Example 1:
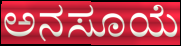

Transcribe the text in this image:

ಅನಸೂಯೆ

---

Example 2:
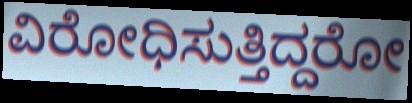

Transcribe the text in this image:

ವಿರೋಧಿಸುತ್ತಿದ್ದರೋ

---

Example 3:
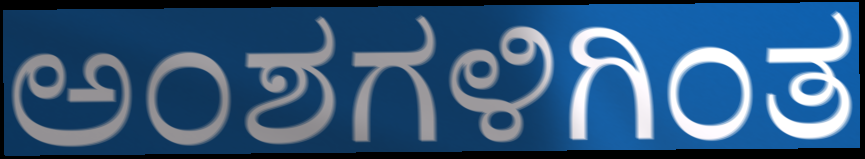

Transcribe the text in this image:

ಅಂಶಗಳಿಗಿಂತ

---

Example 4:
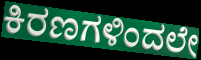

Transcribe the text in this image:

ಕಿರಣಗಳಿಂದಲೇ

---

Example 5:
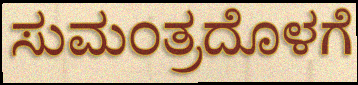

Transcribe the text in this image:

ಸುಮಂತ್ರದೊಳಗೆ